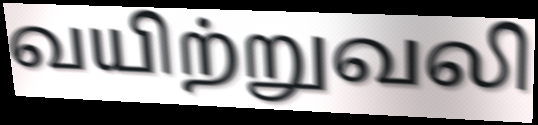
வயிற்றுவலி